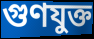
গুণযুক্ত